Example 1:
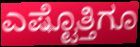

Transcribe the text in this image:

ಎಷ್ಟೊತ್ತಿಗೂ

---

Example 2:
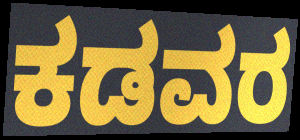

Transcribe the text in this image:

ಕಡವರ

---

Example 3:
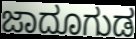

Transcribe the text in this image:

ಜಾದೂಗುಡ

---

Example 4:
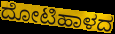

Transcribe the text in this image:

ದೋಟಿಹಾಳದ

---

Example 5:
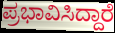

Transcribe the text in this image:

ಪ್ರಭಾವಿಸಿದ್ದಾರೆ